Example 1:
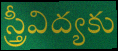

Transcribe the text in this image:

స్త్రీవిద్యకు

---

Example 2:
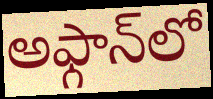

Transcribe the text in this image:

అఫ్గాన్‌లో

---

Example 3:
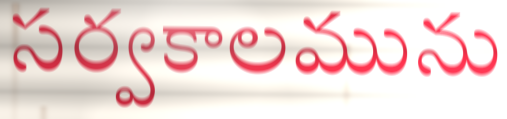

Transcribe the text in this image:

సర్వకాలమును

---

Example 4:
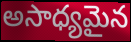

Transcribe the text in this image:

అసాధ్యమైన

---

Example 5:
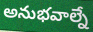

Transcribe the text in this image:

అనుభవాల్నే